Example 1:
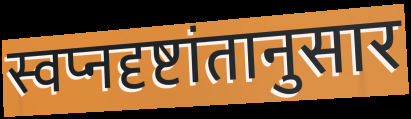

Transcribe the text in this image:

स्वप्नदृष्टांतानुसार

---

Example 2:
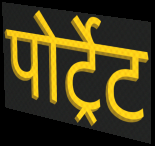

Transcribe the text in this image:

पोर्ट्रेट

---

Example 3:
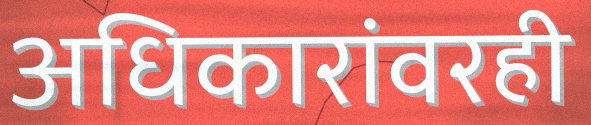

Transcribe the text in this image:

अधिकारांवरही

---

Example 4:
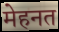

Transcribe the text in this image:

मेहनत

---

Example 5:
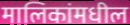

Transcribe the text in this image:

मालिकांमधील